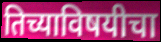
तिच्याविषयीचा